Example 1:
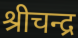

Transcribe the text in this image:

श्रीचन्द्र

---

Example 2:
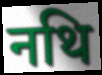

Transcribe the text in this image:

नथि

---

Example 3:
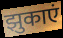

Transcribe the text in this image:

झुकाएं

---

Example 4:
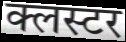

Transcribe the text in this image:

क्‍लस्‍टर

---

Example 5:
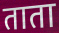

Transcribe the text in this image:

ताता